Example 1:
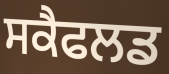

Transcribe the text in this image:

ਸਕੈਫਲਡ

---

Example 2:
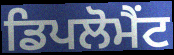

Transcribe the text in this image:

ਡਿਪਲੋਮੈਂਟ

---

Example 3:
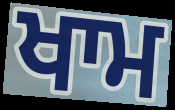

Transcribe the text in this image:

ਖਾਮ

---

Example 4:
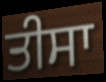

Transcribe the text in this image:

ਤੀਸਾ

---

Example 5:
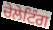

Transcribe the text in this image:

ਚੇਲੇਟਿੰਗ